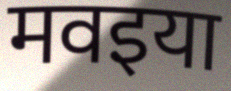
मवइया